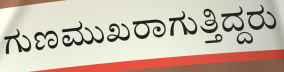
ಗುಣಮುಖರಾಗುತ್ತಿದ್ದರು